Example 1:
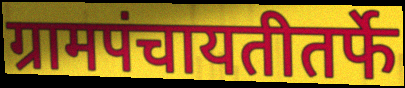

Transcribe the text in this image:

ग्रामपंचायतीतर्फे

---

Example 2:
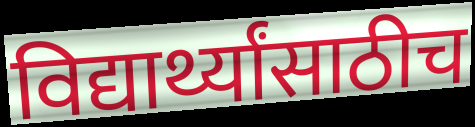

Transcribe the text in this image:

विद्यार्थ्यांसाठीच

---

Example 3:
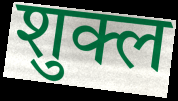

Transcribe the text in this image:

शुक्‍ल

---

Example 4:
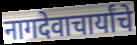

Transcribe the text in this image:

नागदेवाचार्यांचे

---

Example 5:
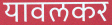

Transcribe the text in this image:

यावलकर